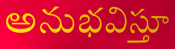
అనుభవిస్తూ